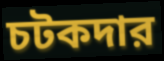
চটকদার